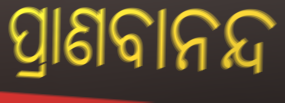
ପ୍ରାଣବାନନ୍ଦ